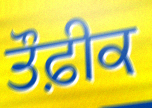
ਤੌਫ਼ੀਕ